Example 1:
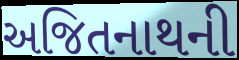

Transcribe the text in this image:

અજિતનાથની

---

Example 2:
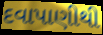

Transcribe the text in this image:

દવાપાણીથી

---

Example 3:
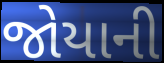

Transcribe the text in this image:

જોયાની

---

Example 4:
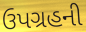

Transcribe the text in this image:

ઉપગ્રહની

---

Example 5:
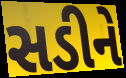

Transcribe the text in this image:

સડીને